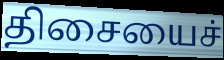
திசையைச்